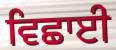
ਵਿਛਾਈ